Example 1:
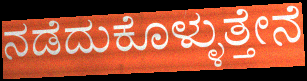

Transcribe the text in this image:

ನಡೆದುಕೊಳ್ಳುತ್ತೇನೆ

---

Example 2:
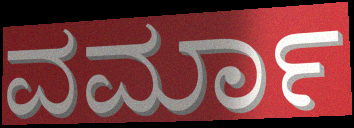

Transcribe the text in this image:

ವರ್ಮಾ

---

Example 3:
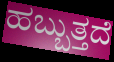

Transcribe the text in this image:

ಹಬ್ಬುತ್ತದೆ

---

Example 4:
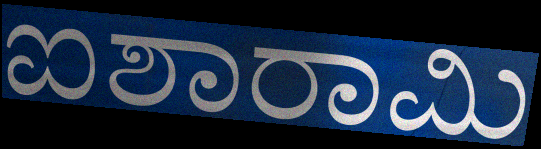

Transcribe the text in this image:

ಐಶಾರಾಮಿ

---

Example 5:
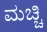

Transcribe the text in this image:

ಮಚ್ಚಿ